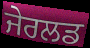
ਜੇਰਲਡ